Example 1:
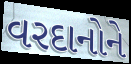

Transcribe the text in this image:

વરદાનોને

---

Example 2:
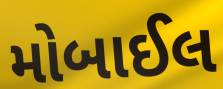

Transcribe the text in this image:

મોબાઈલ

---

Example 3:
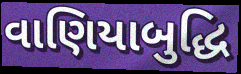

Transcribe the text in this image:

વાણિયાબુદ્ધિ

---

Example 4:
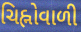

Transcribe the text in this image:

ચિહ્નોવાળી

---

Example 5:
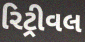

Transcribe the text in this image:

રિટ્રીવલ